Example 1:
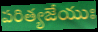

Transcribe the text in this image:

పరిత్యజేయుః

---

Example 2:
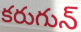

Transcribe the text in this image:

కరుగున్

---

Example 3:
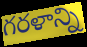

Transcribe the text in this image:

గరళాన్ని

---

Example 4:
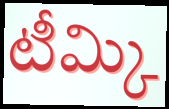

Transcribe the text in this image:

టీమ్కి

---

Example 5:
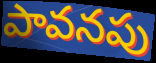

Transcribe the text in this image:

పావనపు